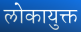
लोकायुक्त